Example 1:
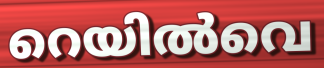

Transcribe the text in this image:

റെയിൽവെ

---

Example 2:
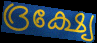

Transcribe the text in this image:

ദ്രക്ഷ്യേ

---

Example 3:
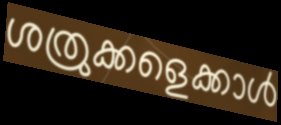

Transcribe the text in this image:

ശത്രുക്കളെക്കാൾ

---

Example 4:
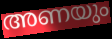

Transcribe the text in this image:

അണയും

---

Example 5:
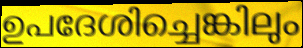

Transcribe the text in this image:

ഉപദേശിച്ചെങ്കിലും